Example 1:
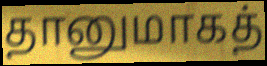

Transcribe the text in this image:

தானுமாகத்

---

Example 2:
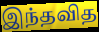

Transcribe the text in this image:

இந்தவித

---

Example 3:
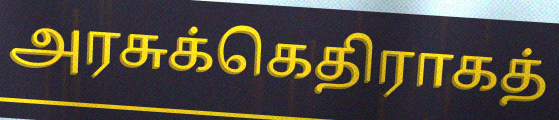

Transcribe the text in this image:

அரசுக்கெதிராகத்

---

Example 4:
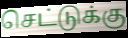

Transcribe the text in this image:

செட்டுக்கு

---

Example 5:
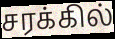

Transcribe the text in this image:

சரக்கில்